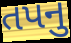
તપનુ